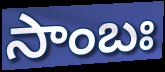
సాంబః